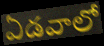
ఏడవాలో